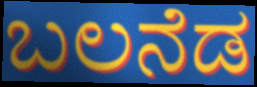
ಬಲನೆಡ